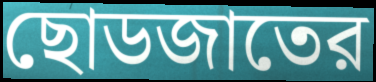
ছোডজাতের